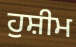
ਹੁਸ਼ੀਮ